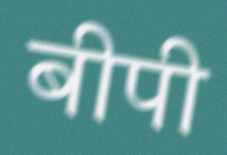
बीपी